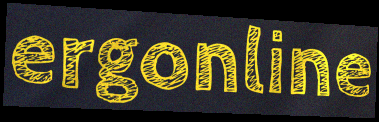
ergonline